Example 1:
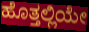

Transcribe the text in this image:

ಹೊತ್ತಲ್ಲಿಯೇ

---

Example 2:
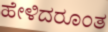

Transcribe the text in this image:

ಹೇಳಿದರೂಂತ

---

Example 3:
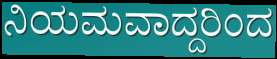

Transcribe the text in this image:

ನಿಯಮವಾದ್ದರಿಂದ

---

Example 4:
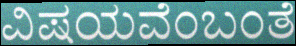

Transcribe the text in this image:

ವಿಷಯವೆಂಬಂತೆ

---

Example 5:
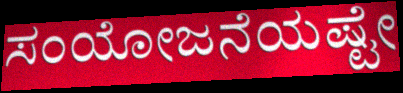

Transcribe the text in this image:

ಸಂಯೋಜನೆಯಷ್ಟೇ